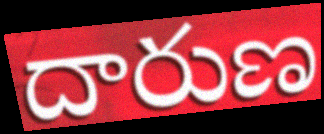
దారుణ